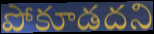
పోకూడదని